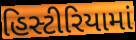
હિસ્ટીરિયામાં